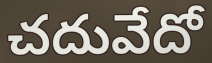
చదువేదో